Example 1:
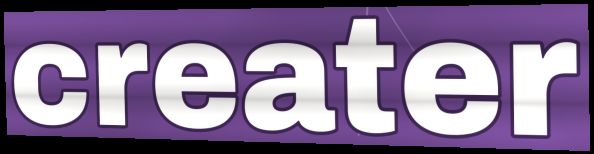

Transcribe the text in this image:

creater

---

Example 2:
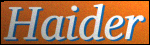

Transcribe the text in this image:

Haider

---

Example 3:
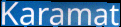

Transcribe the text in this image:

Karamat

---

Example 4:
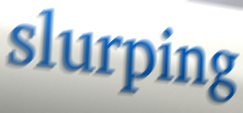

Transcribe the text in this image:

slurping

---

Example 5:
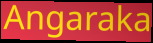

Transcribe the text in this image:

Angaraka